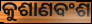
କୁଶାଣବଂଶ